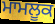
ਮਾਮਲੂਕ